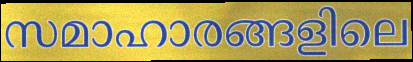
സമാഹാരങ്ങളിലെ